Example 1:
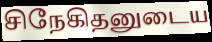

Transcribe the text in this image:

சிநேகிதனுடைய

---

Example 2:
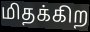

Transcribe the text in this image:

மிதக்கிற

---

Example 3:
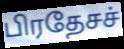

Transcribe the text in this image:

பிரதேசச்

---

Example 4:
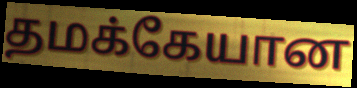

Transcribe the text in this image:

தமக்கேயான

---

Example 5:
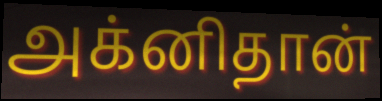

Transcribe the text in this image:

அக்னிதான்